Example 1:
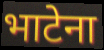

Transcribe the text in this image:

भाटेना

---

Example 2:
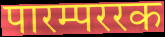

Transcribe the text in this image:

पारम्पररक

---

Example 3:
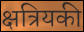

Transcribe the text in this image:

क्षत्रियकी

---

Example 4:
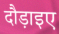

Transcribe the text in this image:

दौड़ाइए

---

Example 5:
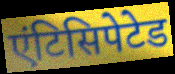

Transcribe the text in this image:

एंटिसिपेटेड